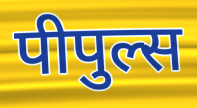
पीपुल्स